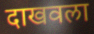
दाखवला